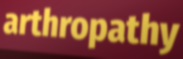
arthropathy